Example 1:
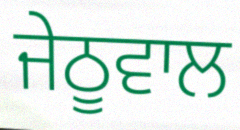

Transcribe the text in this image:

ਜੇਠੂਵਾਲ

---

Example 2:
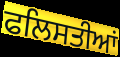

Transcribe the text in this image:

ਫਲਿਸਤੀਆਂ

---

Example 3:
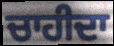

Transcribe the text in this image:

ਚਾਹੀਦਾ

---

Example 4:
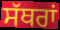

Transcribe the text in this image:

ਸੱਥਰਾਂ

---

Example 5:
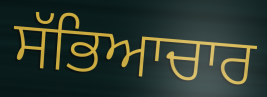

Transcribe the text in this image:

ਸੱਭਿਆਚਾਰ